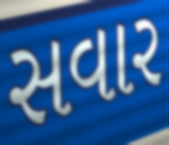
સવાર